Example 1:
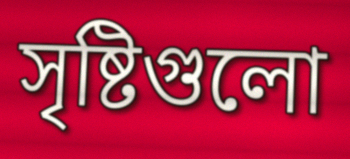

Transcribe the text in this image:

সৃষ্টিগুলো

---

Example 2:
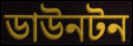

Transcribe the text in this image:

ডাউনটন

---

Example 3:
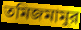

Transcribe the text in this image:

তমিজমামুর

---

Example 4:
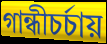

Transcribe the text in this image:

গান্ধীচর্চায়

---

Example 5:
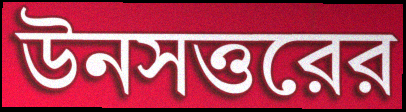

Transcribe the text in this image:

উনসত্তরের